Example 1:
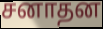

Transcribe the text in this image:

சனாதன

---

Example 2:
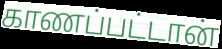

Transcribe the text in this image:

காணப்பட்டான்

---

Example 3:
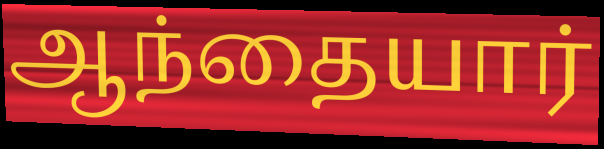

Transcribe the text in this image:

ஆந்தையார்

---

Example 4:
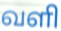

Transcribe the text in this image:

வளி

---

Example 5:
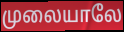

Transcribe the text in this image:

முலையாலே